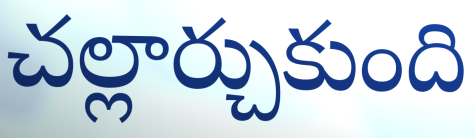
చల్లార్చుకుంది